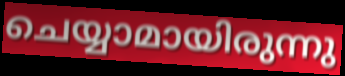
ചെയ്യാമായിരുന്നു